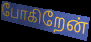
போகிறேன்